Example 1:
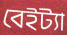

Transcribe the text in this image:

বেইট্যা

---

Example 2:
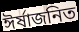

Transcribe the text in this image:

ঈর্ষাজনিত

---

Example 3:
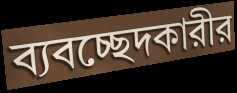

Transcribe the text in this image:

ব্যবচ্ছেদকারীর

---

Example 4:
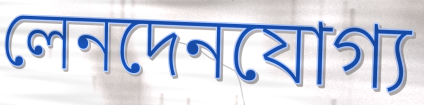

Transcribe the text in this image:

লেনদেনযোগ্য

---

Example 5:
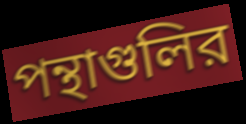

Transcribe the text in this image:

পন্থাগুলির